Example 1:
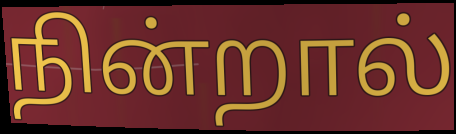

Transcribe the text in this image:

நின்றால்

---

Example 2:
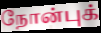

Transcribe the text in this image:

நோன்புக்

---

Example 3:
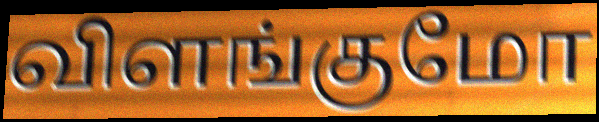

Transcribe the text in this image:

விளங்குமோ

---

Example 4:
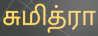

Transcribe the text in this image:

சுமித்ரா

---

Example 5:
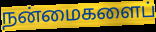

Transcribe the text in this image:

நன்மைகளைப்